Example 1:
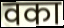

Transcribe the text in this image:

वका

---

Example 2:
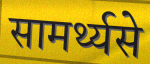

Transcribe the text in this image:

सामर्थ्यसे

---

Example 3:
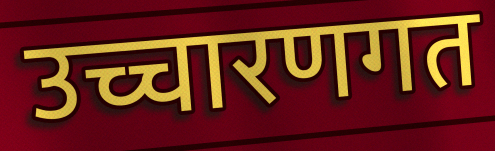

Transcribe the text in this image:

उच्चारणगत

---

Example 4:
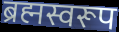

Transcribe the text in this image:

ब्रह्मस्वरूप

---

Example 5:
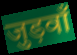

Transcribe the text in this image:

जुड़वाँ